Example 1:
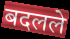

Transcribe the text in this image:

बदलले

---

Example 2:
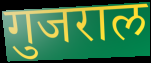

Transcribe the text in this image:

गुजराल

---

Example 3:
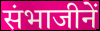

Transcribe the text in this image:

संभाजीनें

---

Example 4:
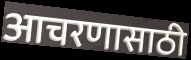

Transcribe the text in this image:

आचरणासाठी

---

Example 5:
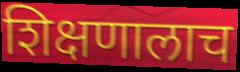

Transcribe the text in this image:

शिक्षणालाच